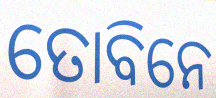
ତୋବିନେ